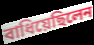
বাধিয়েছিলেন